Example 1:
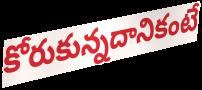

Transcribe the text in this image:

కోరుకున్నదానికంటే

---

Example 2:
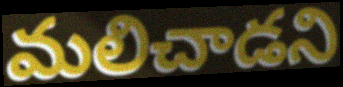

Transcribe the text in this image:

మలిచాడని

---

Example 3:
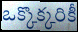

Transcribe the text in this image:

ఒక్కొక్కరికీ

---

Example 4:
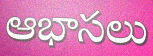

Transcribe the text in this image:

ఆభాసలు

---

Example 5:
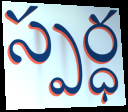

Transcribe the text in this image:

స్పర్ధ